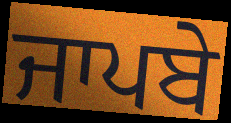
ਜਾਪਬੇ